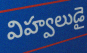
విహ్వలుడై